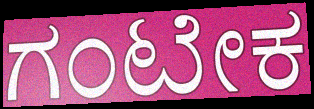
ಗಂಟೇಕ